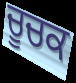
ਚੂਚਕ